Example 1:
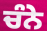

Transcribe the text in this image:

ਚੰਨੇ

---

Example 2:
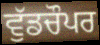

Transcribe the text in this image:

ਵੁੱਡਚੌਪਰ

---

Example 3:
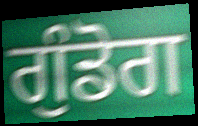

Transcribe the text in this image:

ਗੁੰਡੋਗ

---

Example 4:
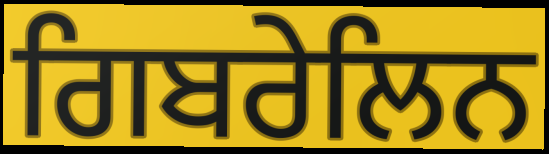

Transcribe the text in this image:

ਗਿਬਰੇਲਿਨ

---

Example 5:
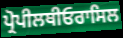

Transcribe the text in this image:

ਪ੍ਰੋਪੀਲਥੀਓਰਾਸਿਲ